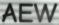
AEW